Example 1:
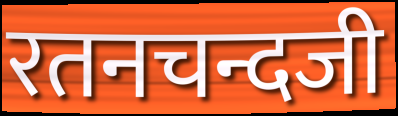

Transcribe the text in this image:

रतनचन्दजी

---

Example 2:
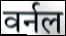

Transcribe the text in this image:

वर्नल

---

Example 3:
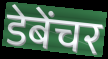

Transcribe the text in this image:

डेबेंचर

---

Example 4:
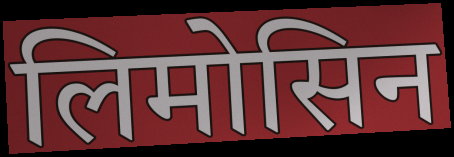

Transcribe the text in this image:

लिमोसिन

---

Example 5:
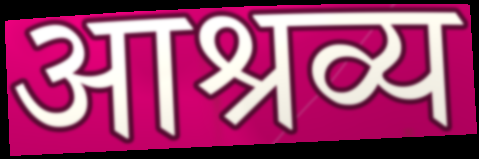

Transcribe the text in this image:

आश्रव्य